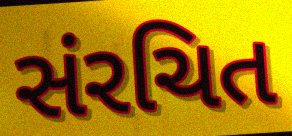
સંરચિત